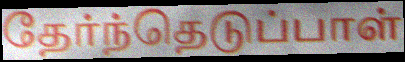
தேர்ந்தெடுப்பாள்